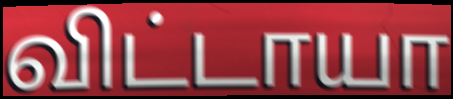
விட்டாயா